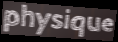
physique